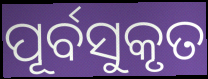
ପୂର୍ବସୁକୃତ